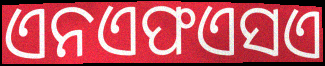
ଏନଏଫଏସଏ